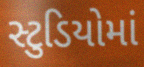
સ્ટુડિયોમાં